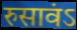
रुसावंऽ